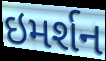
ઇમર્શન